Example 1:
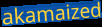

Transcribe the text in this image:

akamaized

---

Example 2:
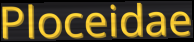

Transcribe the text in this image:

Ploceidae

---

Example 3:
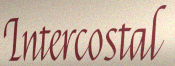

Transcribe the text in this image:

Intercostal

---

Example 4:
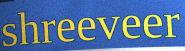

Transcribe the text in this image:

shreeveer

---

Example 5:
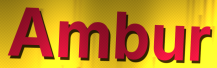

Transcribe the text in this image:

Ambur